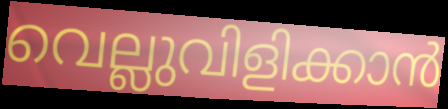
വെല്ലുവിളിക്കാൻ